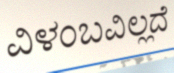
ವಿಳಂಬವಿಲ್ಲದೆ